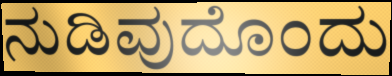
ನುಡಿವುದೊಂದು